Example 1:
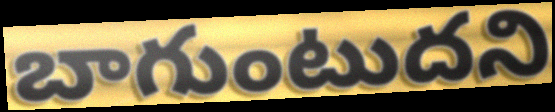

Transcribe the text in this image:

బాగుంటుదని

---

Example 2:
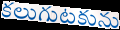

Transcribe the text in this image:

కలుగుటకును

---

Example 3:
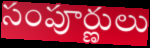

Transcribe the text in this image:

సంపూర్ణులు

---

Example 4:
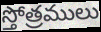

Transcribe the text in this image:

స్తోత్రములు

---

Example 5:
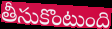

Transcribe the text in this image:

తీసుకొంటుంది